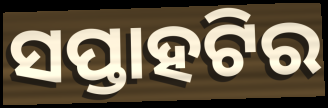
ସପ୍ତାହଟିର